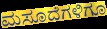
ಮಸೂದೆಗಳಿಗೂ